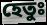
হেতুঃ